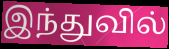
இந்துவில்